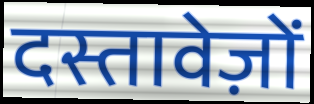
दस्तावेज़ों